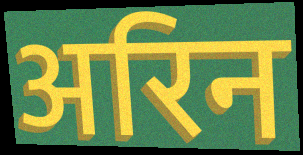
अरिन